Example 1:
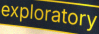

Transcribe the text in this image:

exploratory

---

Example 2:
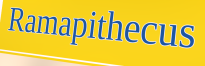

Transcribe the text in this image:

Ramapithecus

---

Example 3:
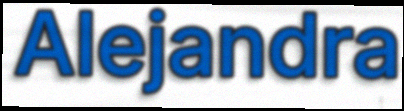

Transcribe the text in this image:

Alejandra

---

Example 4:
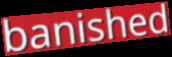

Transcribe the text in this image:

banished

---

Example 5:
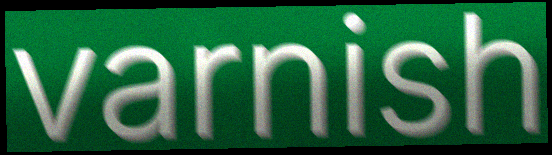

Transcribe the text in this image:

varnish